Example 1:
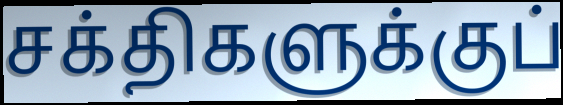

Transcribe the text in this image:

சக்திகளுக்குப்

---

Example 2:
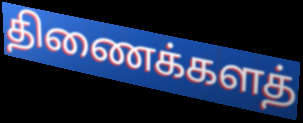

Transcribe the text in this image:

திணைக்களத்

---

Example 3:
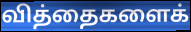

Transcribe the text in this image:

வித்தைகளைக்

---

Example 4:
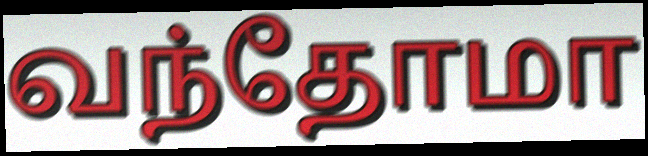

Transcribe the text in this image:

வந்தோமா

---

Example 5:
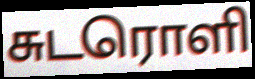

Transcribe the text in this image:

சுடரொளி